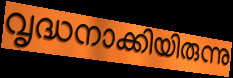
വൃദ്ധനാക്കിയിരുന്നു